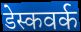
डेस्कवर्क